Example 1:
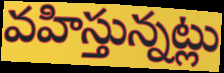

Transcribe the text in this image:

వహిస్తున్నట్లు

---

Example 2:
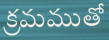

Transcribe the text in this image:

క్రమముతో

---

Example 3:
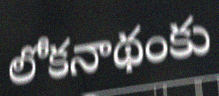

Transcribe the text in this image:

లోకనాథంకు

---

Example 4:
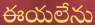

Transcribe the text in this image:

ఈయలేను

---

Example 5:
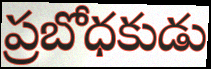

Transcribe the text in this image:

ప్రబోధకుడు